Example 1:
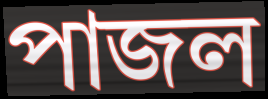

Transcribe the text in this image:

পাজল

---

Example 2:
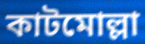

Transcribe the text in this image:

কাটমোল্লা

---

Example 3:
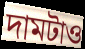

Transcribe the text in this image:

দামটাও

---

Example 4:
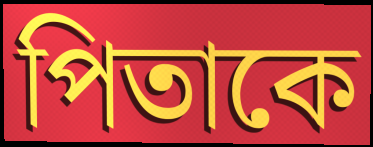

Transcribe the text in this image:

পিতাকে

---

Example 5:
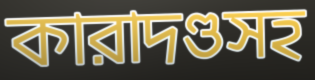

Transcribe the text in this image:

কারাদণ্ডসহ